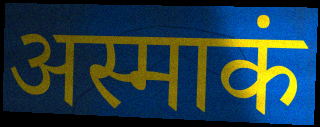
अस्माकं